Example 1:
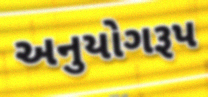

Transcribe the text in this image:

અનુયોગરૂપ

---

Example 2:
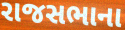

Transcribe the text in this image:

રાજસભાના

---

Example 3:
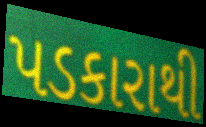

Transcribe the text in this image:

પડકારાથી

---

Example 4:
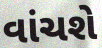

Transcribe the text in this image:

વાંચશે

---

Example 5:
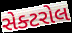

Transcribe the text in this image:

સેક્ટરોલ